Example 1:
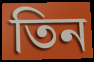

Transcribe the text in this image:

তিন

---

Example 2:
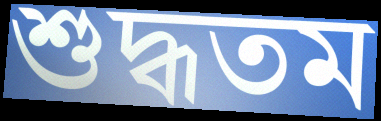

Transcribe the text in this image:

শুদ্ধতম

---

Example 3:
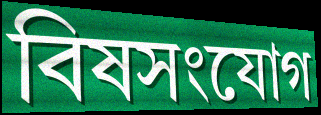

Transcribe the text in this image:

বিষসংযোগ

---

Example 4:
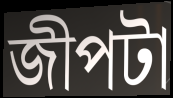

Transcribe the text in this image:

জীপটা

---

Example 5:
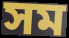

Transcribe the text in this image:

সম